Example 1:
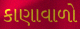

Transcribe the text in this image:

કાણાવાળો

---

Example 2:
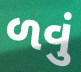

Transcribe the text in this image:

ળવું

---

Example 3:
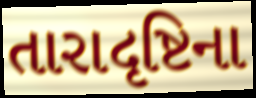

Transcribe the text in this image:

તારાદૃષ્ટિના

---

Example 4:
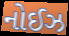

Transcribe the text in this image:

નોઈઝ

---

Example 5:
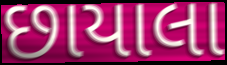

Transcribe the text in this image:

છાયાલા